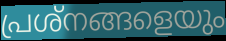
പ്രശ്നങ്ങളെയും